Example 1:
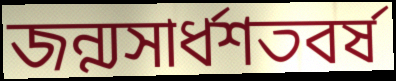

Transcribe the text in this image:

জন্মসার্ধশতবর্ষ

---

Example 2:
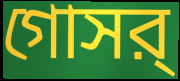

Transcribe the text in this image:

গোসর্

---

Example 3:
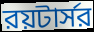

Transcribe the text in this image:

রয়টার্সর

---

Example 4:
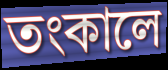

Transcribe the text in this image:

তংকালে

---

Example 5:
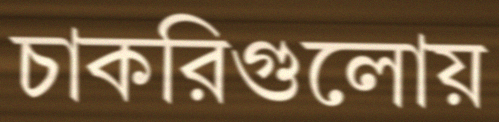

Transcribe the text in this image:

চাকরিগুলোয়